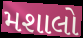
મશાલો